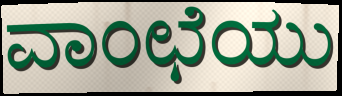
ವಾಂಛೆಯು